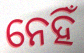
ନେହିଁ